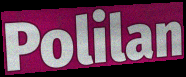
Polilan